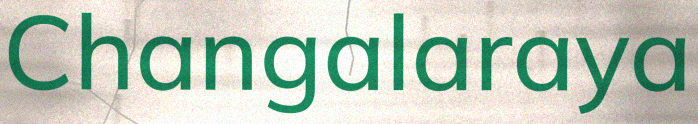
Changalaraya